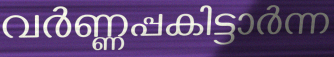
വർണ്ണപ്പകിട്ടാർന്ന